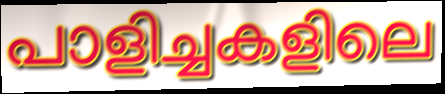
പാളിച്ചകളിലെ